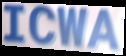
ICWA